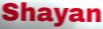
Shayan